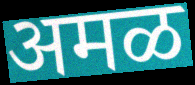
अमळ